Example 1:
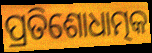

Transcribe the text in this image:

ପ୍ରତିଶୋଧାତ୍ମକ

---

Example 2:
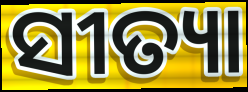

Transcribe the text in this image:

ସୀତ୍ୟା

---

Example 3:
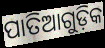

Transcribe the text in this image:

ପାତିଆଗୁଡ଼ିକ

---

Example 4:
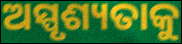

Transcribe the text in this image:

ଅସ୍ପୃଶ୍ୟତାକୁ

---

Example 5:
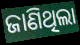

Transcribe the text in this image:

ଜାଣିଥିଲା